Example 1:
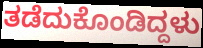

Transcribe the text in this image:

ತಡೆದುಕೊಂಡಿದ್ದಳು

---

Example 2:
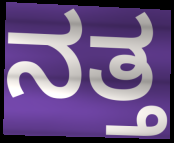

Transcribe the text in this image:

ನತ್ತ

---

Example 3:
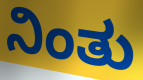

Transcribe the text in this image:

ನಿಂತು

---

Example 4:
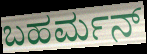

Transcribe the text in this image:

ಬಹರ್ಮನ್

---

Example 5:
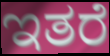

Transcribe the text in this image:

ಇತರೆ